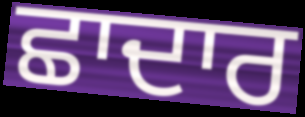
ਛਾਦਾਰ